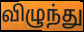
விழுந்து